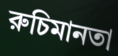
রুচিমানতা